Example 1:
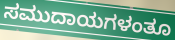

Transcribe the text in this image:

ಸಮುದಾಯಗಳಂತೂ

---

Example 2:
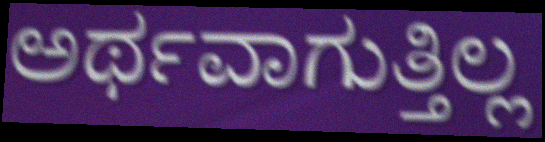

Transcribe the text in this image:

ಅರ್ಥವಾಗುತ್ತಿಲ್ಲ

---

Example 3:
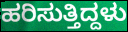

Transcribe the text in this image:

ಹರಿಸುತ್ತಿದ್ದಳು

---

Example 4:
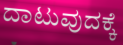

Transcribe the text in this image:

ದಾಟುವುದಕ್ಕೆ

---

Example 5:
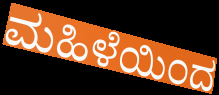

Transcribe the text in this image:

ಮಹಿಳೆಯಿಂದ